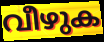
വീഴുക